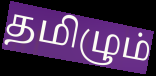
தமிழும்